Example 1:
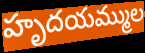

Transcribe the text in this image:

హృదయమ్ముల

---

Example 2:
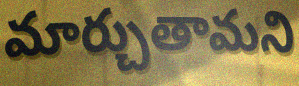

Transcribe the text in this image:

మార్చుతామని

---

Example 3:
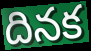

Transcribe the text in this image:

దినక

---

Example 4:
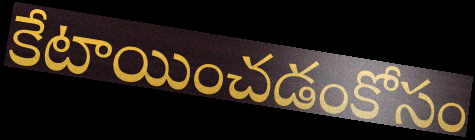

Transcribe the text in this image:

కేటాయించడంకోసం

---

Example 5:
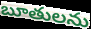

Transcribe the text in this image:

బూతులను